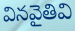
వినవైతివి